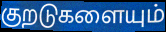
குறடுகளையும்